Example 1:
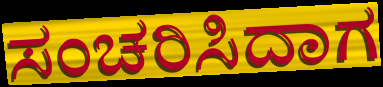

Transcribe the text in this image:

ಸಂಚರಿಸಿದಾಗ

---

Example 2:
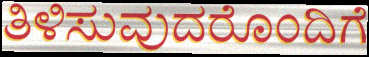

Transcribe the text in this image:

ತಿಳಿಸುವುದರೊಂದಿಗೆ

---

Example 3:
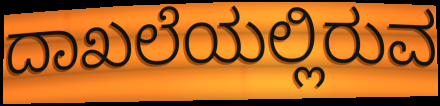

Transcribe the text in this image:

ದಾಖಲೆಯಲ್ಲಿರುವ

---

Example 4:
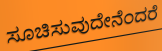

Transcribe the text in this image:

ಸೂಚಿಸುವುದೇನೆಂದರೆ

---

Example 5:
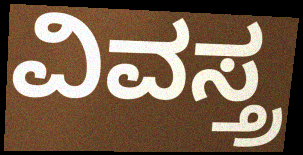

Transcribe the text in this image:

ವಿವಸ್ತ್ರ